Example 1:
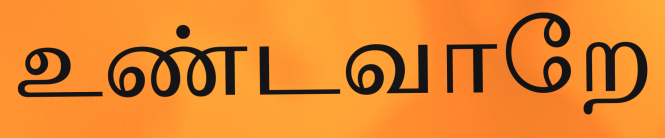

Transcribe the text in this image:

உண்டவாறே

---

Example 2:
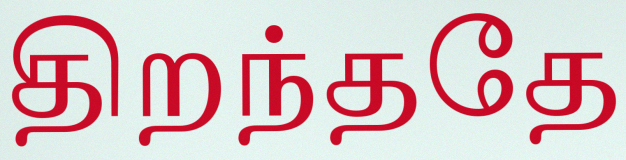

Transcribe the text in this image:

திறந்ததே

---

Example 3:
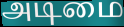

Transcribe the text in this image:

அடிமை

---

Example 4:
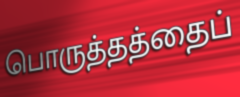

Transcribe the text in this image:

பொருத்தத்தைப்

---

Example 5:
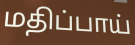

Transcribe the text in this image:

மதிப்பாய்